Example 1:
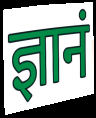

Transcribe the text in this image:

ज्ञानं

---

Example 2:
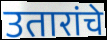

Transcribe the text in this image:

उतारांचे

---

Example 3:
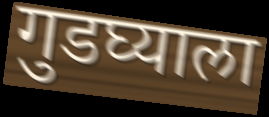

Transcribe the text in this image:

गुडघ्याला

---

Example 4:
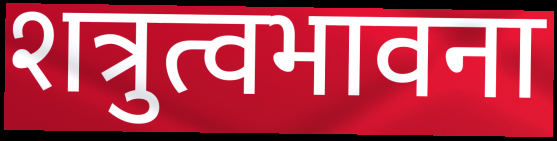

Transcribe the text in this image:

शत्रुत्वभावना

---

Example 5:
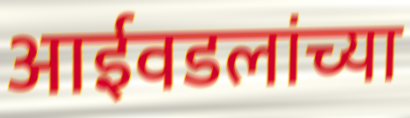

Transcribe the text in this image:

आईवडलांच्या